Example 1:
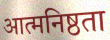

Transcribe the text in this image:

आत्मनिष्ठता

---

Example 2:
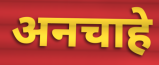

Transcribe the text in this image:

अनचाहे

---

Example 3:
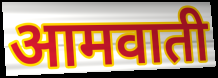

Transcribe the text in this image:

आमवाती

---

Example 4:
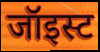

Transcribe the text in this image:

जॉइस्ट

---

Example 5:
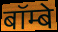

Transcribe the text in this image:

बॉम्‍बे